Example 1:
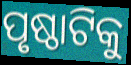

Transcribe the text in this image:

ପୃଷ୍ଠାଟିକୁ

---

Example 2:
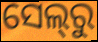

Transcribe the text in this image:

ସେଲ୍‌ରୁ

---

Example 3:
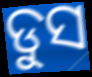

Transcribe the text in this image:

ଡୁସ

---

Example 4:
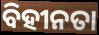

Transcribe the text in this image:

ବିହୀନତା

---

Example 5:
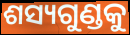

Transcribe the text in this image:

ଶସ୍ୟଗୁଣ୍ଡକୁ